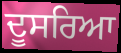
ਦੂਸਰਿਆ